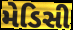
મેડિસી